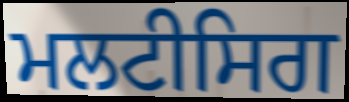
ਮਲਟੀਸਿਗ